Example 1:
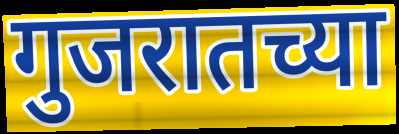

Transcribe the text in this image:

गुजरातच्या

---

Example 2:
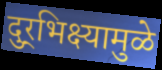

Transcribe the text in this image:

दुर्भिक्ष्यामुळे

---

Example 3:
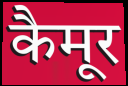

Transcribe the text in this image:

कैमूर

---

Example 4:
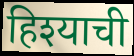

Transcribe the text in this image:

हिश्याची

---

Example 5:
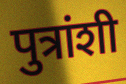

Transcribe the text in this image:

पुत्रांशी